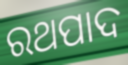
ରଥପାଦ